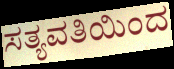
ಸತ್ಯವತಿಯಿಂದ